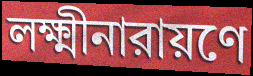
লক্ষ্মীনারায়ণে